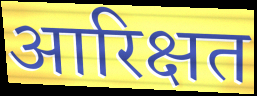
आरिक्षत